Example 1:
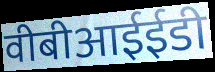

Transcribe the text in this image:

वीबीआईईडी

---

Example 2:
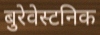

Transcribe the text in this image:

बुरेवेस्टनिक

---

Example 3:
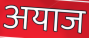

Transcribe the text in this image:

अयाज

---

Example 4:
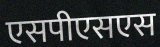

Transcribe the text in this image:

एसपीएसएस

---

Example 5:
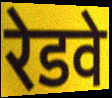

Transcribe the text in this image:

रेडवे